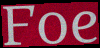
Foe